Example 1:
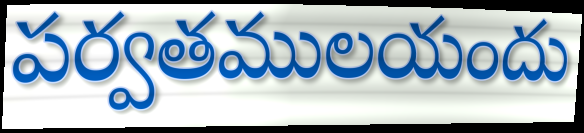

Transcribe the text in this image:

పర్వతములయందు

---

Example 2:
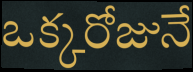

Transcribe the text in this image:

ఒక్కరోజునే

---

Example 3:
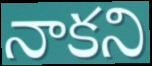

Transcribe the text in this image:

నాకని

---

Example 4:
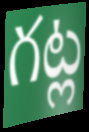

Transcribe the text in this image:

గట్ల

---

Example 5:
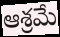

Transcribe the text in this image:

ఆశ్రమే